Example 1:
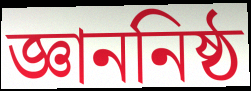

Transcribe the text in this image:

জ্ঞাননিষ্ঠ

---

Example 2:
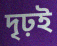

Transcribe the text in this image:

দৃঢ়ই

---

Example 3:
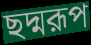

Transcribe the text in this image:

ছদ্মরূপ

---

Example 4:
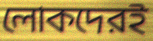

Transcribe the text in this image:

লোকদেরই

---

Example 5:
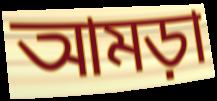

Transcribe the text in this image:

আমড়া